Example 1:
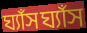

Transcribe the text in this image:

ঘ্যাঁসঘ্যাঁস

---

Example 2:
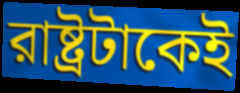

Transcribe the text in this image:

রাষ্ট্রটাকেই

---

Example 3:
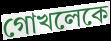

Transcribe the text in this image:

গোখলেকে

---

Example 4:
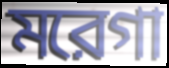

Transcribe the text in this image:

মরেগা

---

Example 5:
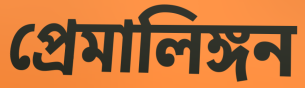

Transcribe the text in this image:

প্রেমালিঙ্গন